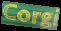
Corgi